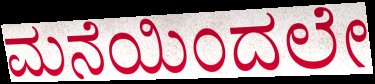
ಮನೆಯಿಂದಲೇ